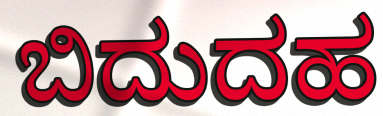
ಬಿದುದಹ